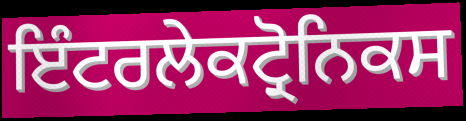
ਇੰਟਰਲੇਕਟ੍ਰੋਨਿਕਸ